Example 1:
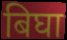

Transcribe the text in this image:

बिघा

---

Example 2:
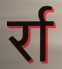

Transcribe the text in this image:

र्रा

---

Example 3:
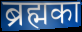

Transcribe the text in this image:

ब्रह्मका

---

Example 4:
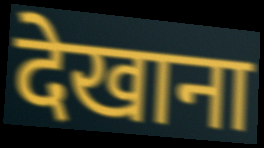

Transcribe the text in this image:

देखाना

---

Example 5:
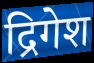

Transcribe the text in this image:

द्रिगेश